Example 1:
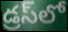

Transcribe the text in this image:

డ్రస్‌లో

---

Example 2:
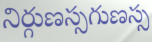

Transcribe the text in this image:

నిర్గుణస్సగుణస్స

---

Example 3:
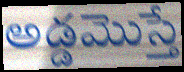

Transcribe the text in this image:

అడ్డమొస్తే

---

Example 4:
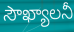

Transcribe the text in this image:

సౌఖ్యాలనీ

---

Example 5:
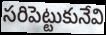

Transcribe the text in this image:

సరిపెట్టుకునేవి